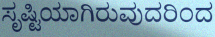
ಸೃಷ್ಟಿಯಾಗಿರುವುದರಿಂದ